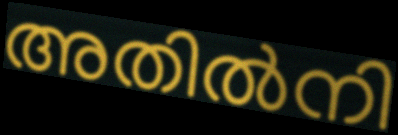
അതിൽനി